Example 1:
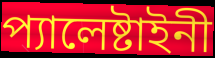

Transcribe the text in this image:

প্যালেষ্টাইনী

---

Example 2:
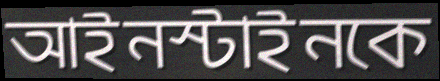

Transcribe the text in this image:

আইনস্টাইনকে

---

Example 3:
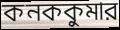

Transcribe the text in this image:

কনককুমার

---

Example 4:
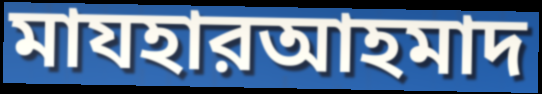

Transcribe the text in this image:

মাযহারআহমাদ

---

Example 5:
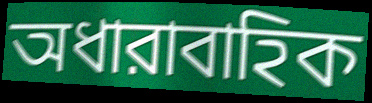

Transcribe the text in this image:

অধারাবাহিক